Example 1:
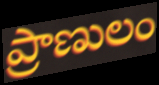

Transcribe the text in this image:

ప్రాణులం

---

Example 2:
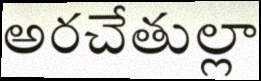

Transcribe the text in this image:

అరచేతుల్లా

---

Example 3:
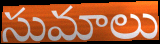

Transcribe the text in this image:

సుమాలు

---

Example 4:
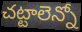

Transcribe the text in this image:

చట్టాలెన్నో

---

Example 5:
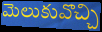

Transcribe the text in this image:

మెలుకువొచ్చి